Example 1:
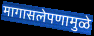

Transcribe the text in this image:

मागासलेपणामुळे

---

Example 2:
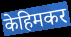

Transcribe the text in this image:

केहिमकर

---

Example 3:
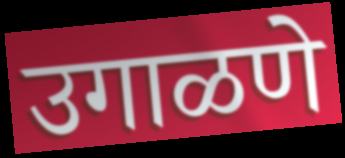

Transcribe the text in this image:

उगाळणे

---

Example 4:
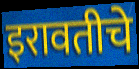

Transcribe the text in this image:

इरावतीचे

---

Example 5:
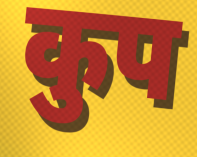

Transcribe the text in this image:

कुप